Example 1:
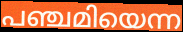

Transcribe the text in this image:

പഞ്ചമിയെന്ന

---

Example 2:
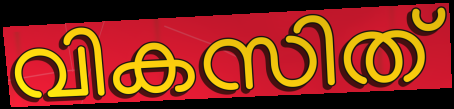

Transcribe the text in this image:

വികസിത്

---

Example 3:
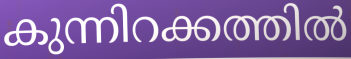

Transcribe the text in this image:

കുന്നിറക്കത്തിൽ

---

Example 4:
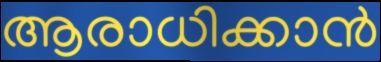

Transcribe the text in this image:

ആരാധിക്കാൻ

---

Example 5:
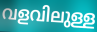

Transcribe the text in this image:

വളവിലുള്ള